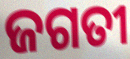
ଜଗତୀ